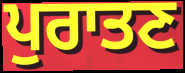
ਪੁਰਾਤਣ